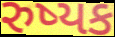
રુષ્યક